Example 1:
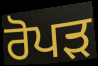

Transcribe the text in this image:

ਰੋਪੜ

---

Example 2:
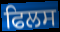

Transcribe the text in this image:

ਫਿਲਸ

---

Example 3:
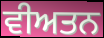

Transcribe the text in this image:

ਵੀਅਤਨ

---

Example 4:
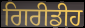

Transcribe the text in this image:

ਗਿਰੀਡੀਹ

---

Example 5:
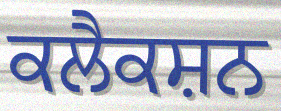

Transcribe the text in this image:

ਕਲੈਕਸ਼ਨ